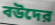
বউদের